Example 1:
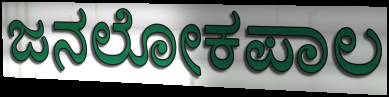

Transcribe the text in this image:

ಜನಲೋಕಪಾಲ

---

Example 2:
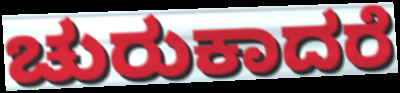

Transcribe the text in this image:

ಚುರುಕಾದರೆ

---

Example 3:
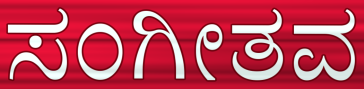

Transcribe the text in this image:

ಸಂಗೀತವ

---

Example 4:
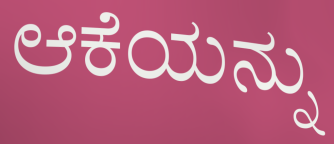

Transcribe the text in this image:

ಆಕೆಯನ್ನು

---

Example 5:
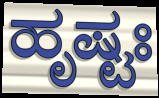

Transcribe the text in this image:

ಹೃಷ್ಟಃ